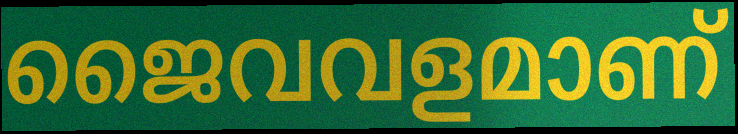
ജൈവവളമാണ്